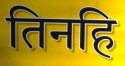
तिनहि